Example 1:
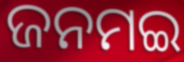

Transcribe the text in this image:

ଜନମଇ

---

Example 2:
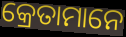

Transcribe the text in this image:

କ୍ରେତାମାନେ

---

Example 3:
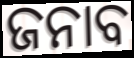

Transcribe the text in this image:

ଜନାବ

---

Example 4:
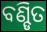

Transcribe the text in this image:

ବଣ୍ଡିତ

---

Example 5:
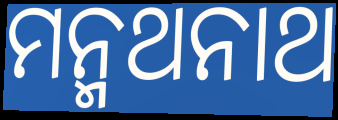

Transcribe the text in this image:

ମନ୍ମଥନାଥ